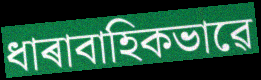
ধাৰাবাহিকভাৱে